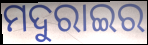
ମଦୁରାଇର